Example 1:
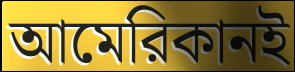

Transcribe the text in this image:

আমেরিকানই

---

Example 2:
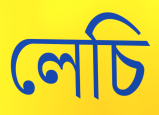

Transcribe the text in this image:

লেচি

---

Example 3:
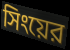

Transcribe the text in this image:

সিংয়ের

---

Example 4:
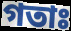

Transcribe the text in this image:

গতাঃ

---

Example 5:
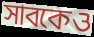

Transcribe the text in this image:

সাবকেও